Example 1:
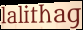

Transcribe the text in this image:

lalithag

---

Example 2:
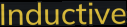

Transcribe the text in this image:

Inductive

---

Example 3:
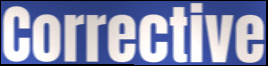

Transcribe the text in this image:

Corrective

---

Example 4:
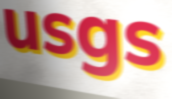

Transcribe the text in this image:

usgs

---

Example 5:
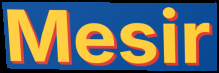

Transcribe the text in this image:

Mesir